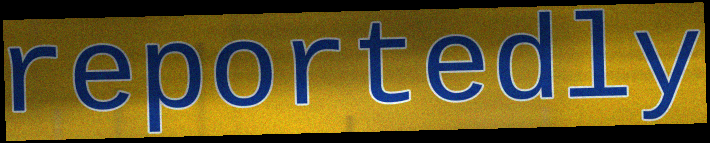
reportedly